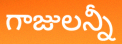
గాజులన్నీ